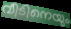
വീടിനെയും